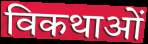
विकथाओं